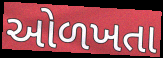
ઓળખતા